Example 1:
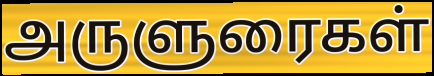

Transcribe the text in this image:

அருளுரைகள்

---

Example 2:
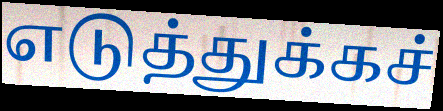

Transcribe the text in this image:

எடுத்துக்கச்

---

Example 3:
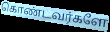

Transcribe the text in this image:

கொண்டவர்களே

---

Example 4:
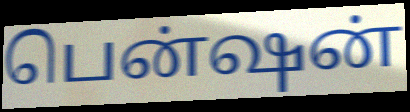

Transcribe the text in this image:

பென்ஷன்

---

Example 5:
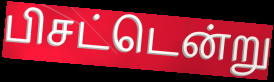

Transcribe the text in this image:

பிசட்டென்று